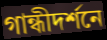
গান্ধীদর্শনে